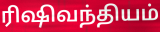
ரிஷிவந்தியம்